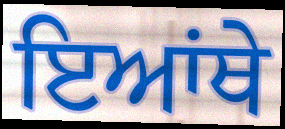
ਇਆਂਥੇ